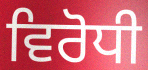
ਵਿਰੋਧੀ